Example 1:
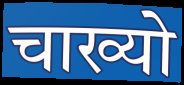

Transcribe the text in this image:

चाख्यो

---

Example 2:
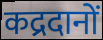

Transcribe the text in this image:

कद्रदानों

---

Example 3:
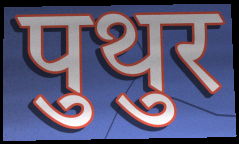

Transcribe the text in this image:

पुथुर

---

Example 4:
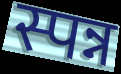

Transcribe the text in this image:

स्पन्न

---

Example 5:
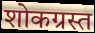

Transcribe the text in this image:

शोकग्रस्त